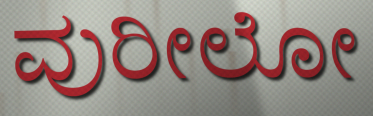
ವುರೀಲೋ